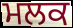
ਮਲਕ